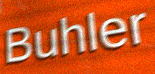
Buhler